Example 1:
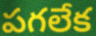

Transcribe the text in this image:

పగలేక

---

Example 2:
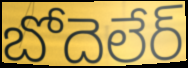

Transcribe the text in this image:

బోదెలేర్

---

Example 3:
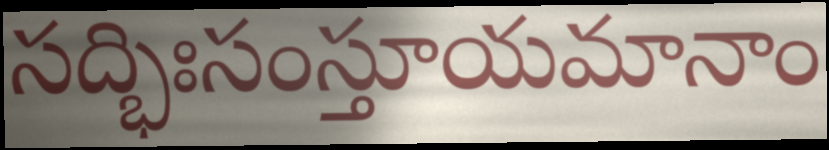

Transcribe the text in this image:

సద్భిఃసంస్తూయమానాం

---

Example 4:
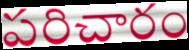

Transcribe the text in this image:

పరిచారం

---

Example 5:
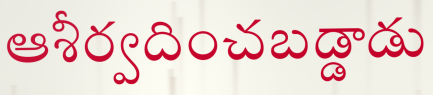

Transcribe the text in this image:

ఆశీర్వదించబడ్డాడు